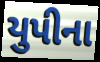
યુપીના